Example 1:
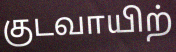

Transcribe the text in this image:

குடவாயிற்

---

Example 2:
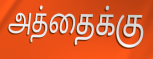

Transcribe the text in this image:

அத்தைக்கு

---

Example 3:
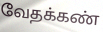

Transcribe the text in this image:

வேதக்கண்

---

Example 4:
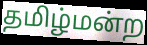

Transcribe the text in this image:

தமிழ்மன்ற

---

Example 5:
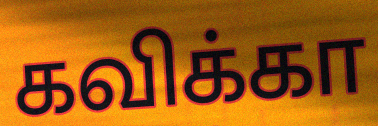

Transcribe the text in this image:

கவிக்கா